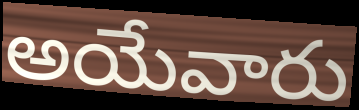
అయేవారు